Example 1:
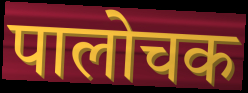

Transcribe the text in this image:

पालोचक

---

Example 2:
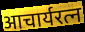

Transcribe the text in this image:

आचार्यरत्न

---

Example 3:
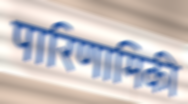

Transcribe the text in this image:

पारिणामिकी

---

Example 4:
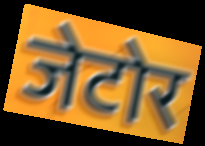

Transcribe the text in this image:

जेटोर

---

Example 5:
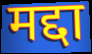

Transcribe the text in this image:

मद्दा